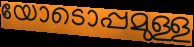
യോടൊപ്പമുള്ള